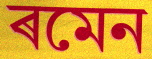
ৰমেন